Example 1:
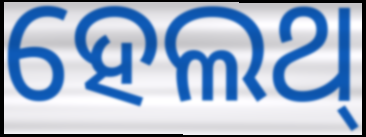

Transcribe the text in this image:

ହେଲଥ୍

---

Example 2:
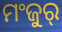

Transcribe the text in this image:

ମଂଜୁର୍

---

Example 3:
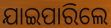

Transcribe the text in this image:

ଯାଇପାରିଲେ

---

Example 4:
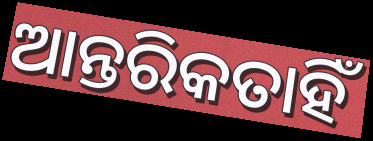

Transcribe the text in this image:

ଆନ୍ତରିକତାହିଁ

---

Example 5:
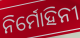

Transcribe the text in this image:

ନିର୍ମୋହିନୀ